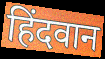
हिंदवान